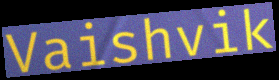
Vaishvik